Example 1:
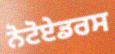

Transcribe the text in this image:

ਨੋਟੋਏਡਰਸ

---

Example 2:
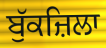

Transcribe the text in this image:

ਬੁੱਕਜ਼ਿਲਾ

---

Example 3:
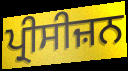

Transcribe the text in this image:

ਪ੍ਰੀਸੀਜ਼ਨ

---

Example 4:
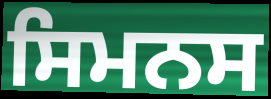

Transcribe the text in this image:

ਸਿਮਨਸ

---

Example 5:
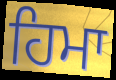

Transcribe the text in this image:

ਹਿਮਾ